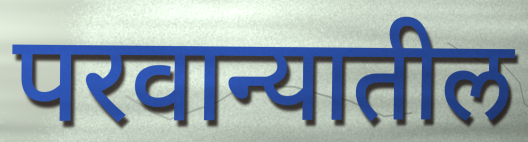
परवान्यातील